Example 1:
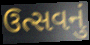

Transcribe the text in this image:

ઉત્સવનું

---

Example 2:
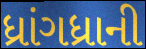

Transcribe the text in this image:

ધ્રાંગધ્રાની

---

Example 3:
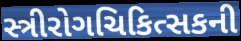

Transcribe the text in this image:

સ્ત્રીરોગચિકિત્સકની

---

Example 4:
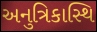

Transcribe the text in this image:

અનુત્રિકાસ્થિ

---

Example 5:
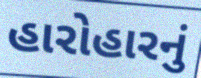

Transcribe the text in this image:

હારોહારનું